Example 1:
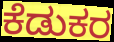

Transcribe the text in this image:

ಕೆಡುಕರ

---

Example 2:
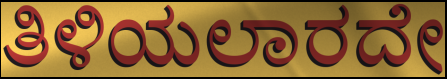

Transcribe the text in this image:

ತಿಳಿಯಲಾರದೇ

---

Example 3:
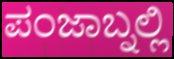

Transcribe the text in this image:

ಪಂಜಾಬ್ನಲ್ಲಿ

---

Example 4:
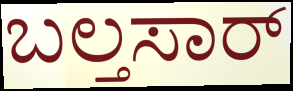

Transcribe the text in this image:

ಬಲ್ತಸಾರ್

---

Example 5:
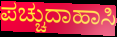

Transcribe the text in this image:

ಪಚ್ಚುದಾಹಾಸಿ